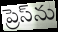
ప్రెస్‌ను